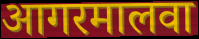
आगरमालवा